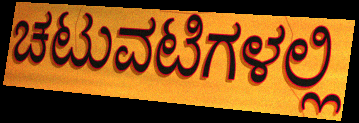
ಚಟುವಟಿಗಳಲ್ಲಿ